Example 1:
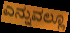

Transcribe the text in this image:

ಎನ್ನುವಲ್ಲೂ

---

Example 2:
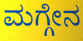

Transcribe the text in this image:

ಮಗ್ಗೇನ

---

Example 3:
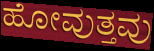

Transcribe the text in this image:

ಹೋವುತ್ತವು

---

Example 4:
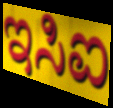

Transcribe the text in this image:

ಇಸಿಐ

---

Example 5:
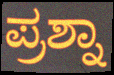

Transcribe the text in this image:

ಪ್ರಶ್ನಾ